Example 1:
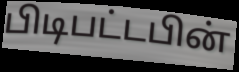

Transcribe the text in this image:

பிடிபட்டபின்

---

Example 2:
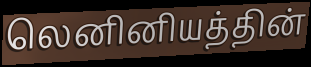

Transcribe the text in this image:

லெனினியத்தின்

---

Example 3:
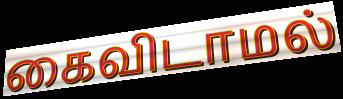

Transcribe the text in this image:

கைவிடாமல்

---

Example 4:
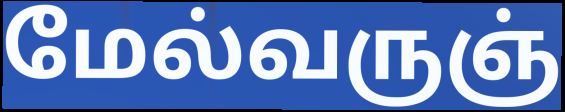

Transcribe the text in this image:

மேல்வருஞ்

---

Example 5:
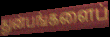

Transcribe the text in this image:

துன்பங்களைப்